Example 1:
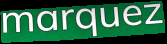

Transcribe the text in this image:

marquez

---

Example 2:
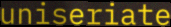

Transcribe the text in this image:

uniseriate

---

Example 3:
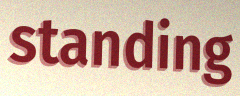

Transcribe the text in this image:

standing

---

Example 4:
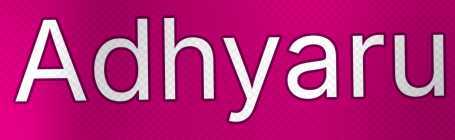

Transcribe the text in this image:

Adhyaru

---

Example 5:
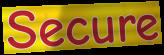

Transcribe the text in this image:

Secure